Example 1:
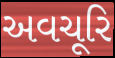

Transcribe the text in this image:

અવચૂરિ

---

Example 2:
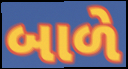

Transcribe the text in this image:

બાળે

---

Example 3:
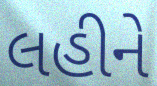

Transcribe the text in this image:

લહીને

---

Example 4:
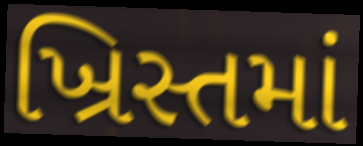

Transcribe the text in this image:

ખ્રિસ્તમાં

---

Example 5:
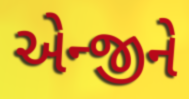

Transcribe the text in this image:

એન્જીને